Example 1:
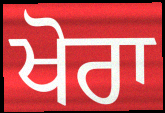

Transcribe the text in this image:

ਖੋਰਾ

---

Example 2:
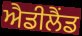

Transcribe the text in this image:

ਐਡੀਲੈਂਡ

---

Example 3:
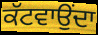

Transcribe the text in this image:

ਕੱਟਵਾਉਂਦਾ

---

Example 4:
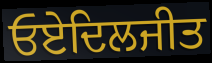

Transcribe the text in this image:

ਓਏਦਿਲਜੀਤ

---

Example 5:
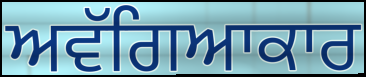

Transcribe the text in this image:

ਅਵੱਗਿਆਕਾਰ